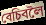
বেচিবলৈ